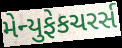
મેન્યુફેકચરર્સ